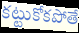
కట్టుకోకపోతే